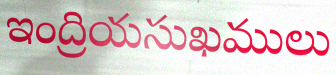
ఇంద్రియసుఖములు